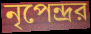
নৃপেন্দ্রর